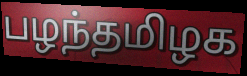
பழந்தமிழக